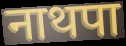
नाथपा